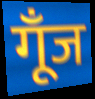
गूँज